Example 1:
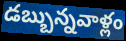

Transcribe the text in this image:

డబ్బున్నవాళ్లం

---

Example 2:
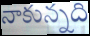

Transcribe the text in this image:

నాకున్నది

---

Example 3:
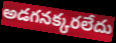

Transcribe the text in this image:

అడగనక్కరలేదు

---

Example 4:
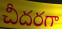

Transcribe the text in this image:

చీదరగా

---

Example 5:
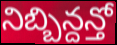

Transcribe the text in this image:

నిబ్బిన్దన్తో